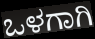
ಒಳಗಾಗಿ